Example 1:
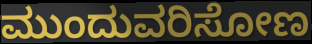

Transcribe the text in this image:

ಮುಂದುವರಿಸೋಣ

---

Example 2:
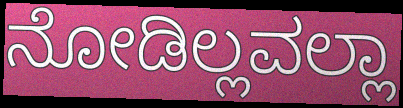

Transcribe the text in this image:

ನೋಡಿಲ್ಲವಲ್ಲಾ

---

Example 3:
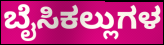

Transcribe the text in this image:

ಬೈಸಿಕಲ್ಲುಗಳ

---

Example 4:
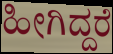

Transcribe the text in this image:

ಹೀಗಿದ್ದರೆ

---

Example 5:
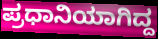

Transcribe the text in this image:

ಪ್ರಧಾನಿಯಾಗಿದ್ದ